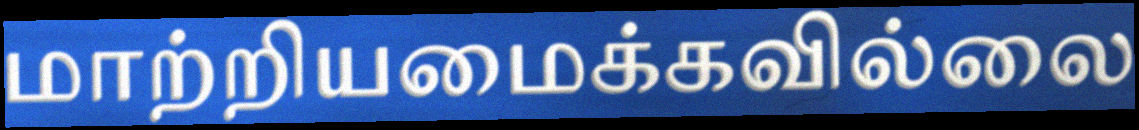
மாற்றியமைக்கவில்லை